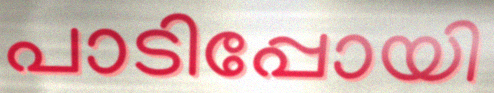
പാടിപ്പോയി